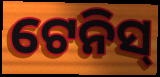
ଟେନିସ୍